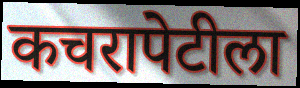
कचरापेटीला